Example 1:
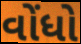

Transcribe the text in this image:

વોંધો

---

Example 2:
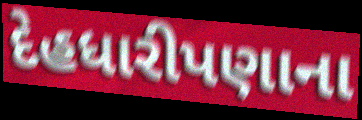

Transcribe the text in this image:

દેહધારીપણાના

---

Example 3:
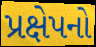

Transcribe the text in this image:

પ્રક્ષેપનો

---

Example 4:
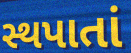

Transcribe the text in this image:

સ્થપાતાં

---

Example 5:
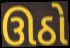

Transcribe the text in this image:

ઊઠો